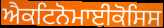
ਐਕਟਿਨੋਮਾਈਕੋਸਿਸ